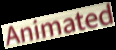
Animated